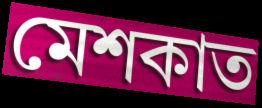
মেশকাত